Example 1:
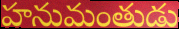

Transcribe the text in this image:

హనుమంతుడు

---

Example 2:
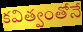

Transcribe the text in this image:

కవిత్వంతోనే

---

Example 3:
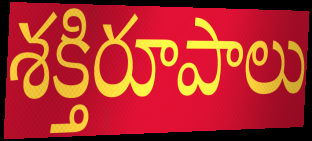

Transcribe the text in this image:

శక్తిరూపాలు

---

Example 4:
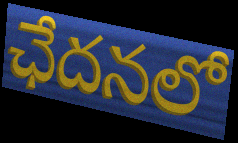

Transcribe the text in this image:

ఛేదనలో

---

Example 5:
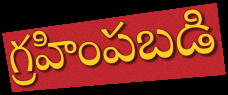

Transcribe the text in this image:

గ్రహింపబడి